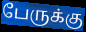
பேருக்கு